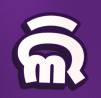
ଲି